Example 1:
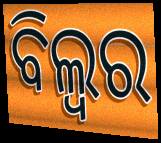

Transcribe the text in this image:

ବିଲ୍ୱର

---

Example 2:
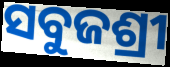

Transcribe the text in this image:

ସବୁଜଶ୍ରୀ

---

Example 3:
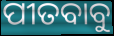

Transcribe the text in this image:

ପୀତବାବୁ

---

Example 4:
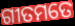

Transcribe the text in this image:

ଗୀତମତେ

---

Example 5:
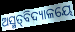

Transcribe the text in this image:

ଅସ୍ମତ୍‌ବିଦ୍ୟାଳୟେ